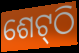
ଶେଟ୍‍ଠି